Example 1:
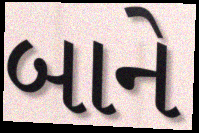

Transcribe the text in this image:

બાને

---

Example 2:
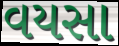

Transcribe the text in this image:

વયસા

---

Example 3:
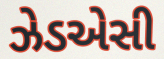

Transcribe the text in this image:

ઝેડએસી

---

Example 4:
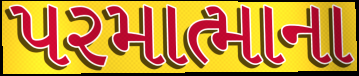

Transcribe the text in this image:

પરમાત્માના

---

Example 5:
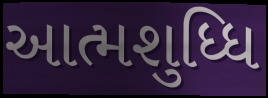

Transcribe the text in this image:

આત્મશુધ્ધિ